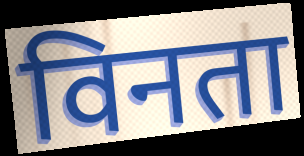
विनता